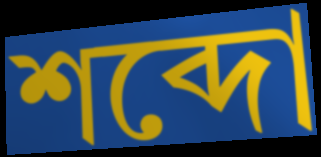
শব্দো